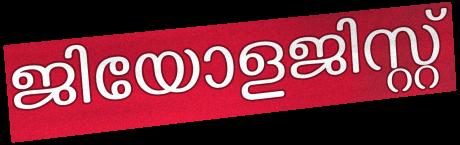
ജിയോളജിസ്റ്റ്